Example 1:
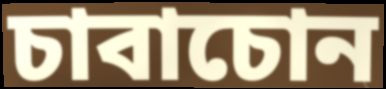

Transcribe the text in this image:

চাবাচোন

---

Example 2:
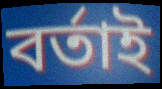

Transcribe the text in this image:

বৰ্তাই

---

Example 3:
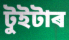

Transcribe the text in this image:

টুইটাৰ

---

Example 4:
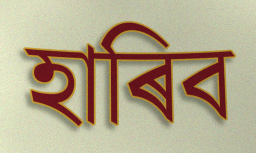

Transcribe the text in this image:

হাৰিব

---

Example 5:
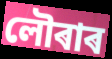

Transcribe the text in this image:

লৌৰাৰ